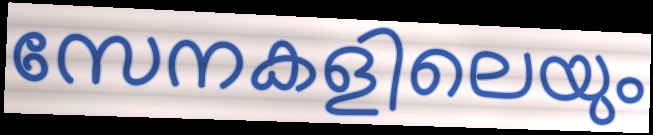
സേനകളിലെയും